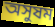
অসুষম